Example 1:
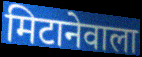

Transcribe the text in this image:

मिटानेवाला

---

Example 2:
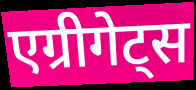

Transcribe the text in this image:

एग्रीगेट्स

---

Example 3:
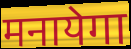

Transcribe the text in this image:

मनायेगा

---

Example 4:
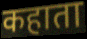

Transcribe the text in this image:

कहाता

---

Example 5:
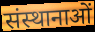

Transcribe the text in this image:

संस्थानाओं